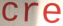
cre